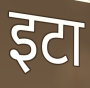
इटा